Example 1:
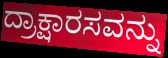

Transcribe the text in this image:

ದ್ರಾಕ್ಷಾರಸವನ್ನು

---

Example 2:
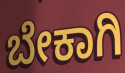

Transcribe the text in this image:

ಬೇಕಾಗಿ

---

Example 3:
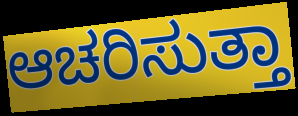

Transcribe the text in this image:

ಆಚರಿಸುತ್ತಾ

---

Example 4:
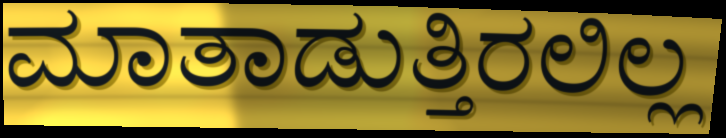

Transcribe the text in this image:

ಮಾತಾಡುತ್ತಿರಲಿಲ್ಲ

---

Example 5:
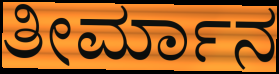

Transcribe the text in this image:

ತೀರ್ಮಾನ